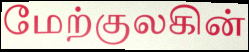
மேற்குலகின்